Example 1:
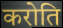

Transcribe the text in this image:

करोति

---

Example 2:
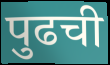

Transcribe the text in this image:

पुढची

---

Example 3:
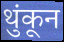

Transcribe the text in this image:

थुंकून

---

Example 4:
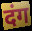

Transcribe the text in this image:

दंग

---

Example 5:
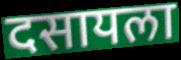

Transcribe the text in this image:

दसायला